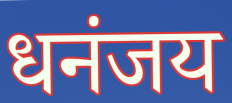
धनंजय